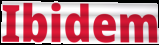
Ibidem